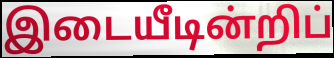
இடையீடின்றிப்